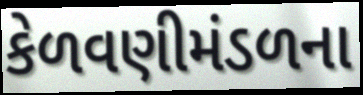
કેળવણીમંડળના